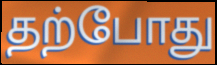
தற்போது